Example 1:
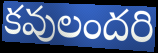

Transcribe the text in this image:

కవులందరి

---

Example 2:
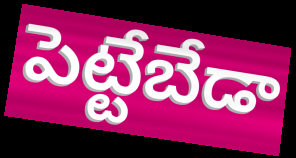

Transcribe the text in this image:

పెట్టేబేడా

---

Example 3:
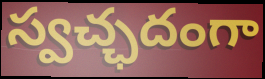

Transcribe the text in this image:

స్వచ్ఛదంగా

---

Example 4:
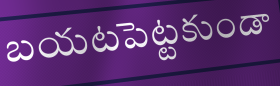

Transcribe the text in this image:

బయటపెట్టకుండా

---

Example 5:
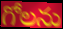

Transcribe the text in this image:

గోలను